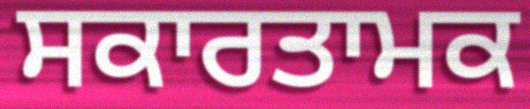
ਸਕਾਰਤਾਮਕ